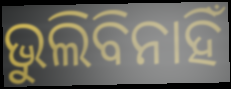
ଭୁଲିବିନାହିଁ